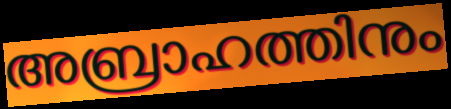
അബ്രാഹത്തിനും